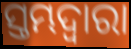
ସ୍ତମ୍ଭଦ୍ୱାରା